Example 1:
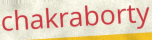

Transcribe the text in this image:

chakraborty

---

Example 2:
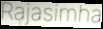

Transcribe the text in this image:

Rajasimha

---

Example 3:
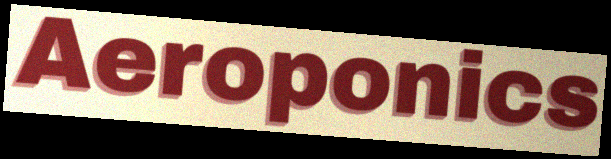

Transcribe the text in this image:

Aeroponics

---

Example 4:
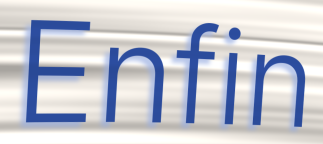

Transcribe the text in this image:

Enfin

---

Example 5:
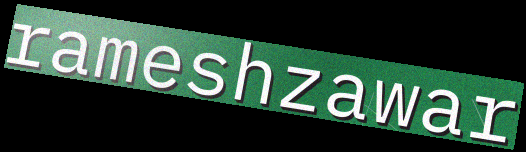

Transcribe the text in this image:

rameshzawar